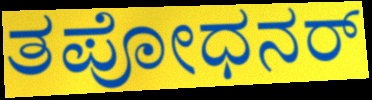
ತಪೋಧನರ್